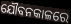
ଯୌବନକାଳରେ